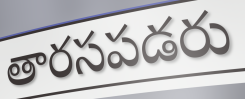
తారసపడరు